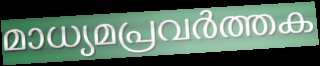
മാധ്യമപ്രവർത്തക